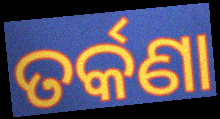
ତର୍କଣା